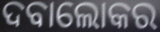
ଦବାଲୋକର